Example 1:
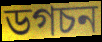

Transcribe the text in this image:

ডগচন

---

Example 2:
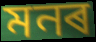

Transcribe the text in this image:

মনৰ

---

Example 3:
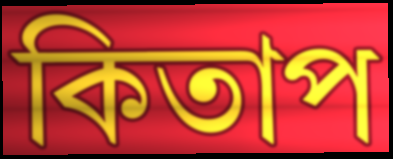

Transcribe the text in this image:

কিতাপ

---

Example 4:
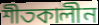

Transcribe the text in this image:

শীতকালীন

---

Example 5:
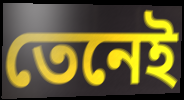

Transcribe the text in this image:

তেনেই